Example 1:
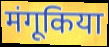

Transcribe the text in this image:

मंगूकिया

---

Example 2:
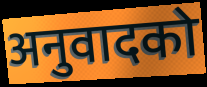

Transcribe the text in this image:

अनुवादको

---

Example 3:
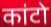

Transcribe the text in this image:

कांटो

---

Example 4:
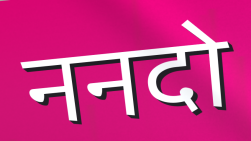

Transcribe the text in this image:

ननदो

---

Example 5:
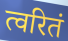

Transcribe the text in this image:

त्वरितं